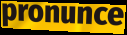
pronunce